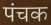
पंचक